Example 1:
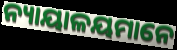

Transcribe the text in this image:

ନ୍ୟାୟାଳୟମାନେ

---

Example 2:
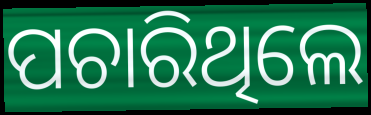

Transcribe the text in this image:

ପଚାରିଥିଲେ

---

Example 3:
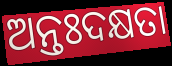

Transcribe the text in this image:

ଅନ୍ତଃଦକ୍ଷତା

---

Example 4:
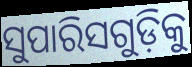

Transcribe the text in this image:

ସୁପାରିସଗୁଡ଼ିକୁ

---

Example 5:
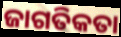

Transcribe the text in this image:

ଜାଗତିକତା